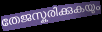
തേജസ്കരിക്കുകയും